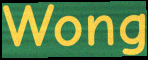
Wong